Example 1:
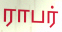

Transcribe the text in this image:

ராபர்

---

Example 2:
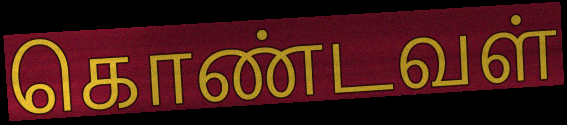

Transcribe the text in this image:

கொண்டவள்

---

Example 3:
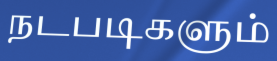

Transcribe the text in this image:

நடபடிகளும்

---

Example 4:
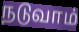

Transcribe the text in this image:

நடுவாம்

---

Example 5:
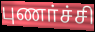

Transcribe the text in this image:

புணர்ச்சி